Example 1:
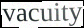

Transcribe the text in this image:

vacuity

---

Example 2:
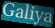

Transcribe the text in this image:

Galiya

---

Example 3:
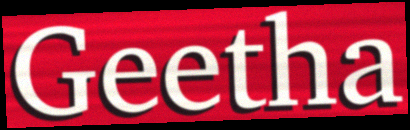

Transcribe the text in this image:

Geetha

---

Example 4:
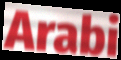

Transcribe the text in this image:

Arabi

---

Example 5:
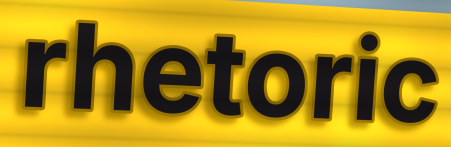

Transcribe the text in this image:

rhetoric